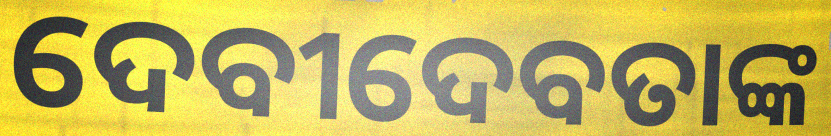
ଦେବୀଦେବତାଙ୍କ